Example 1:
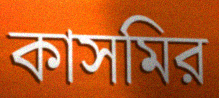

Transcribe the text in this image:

কাসমির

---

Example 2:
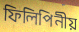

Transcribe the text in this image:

ফিলিপিনীয়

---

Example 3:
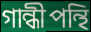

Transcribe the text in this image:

গান্ধীপন্থি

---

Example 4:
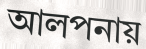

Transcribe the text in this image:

আলপনায়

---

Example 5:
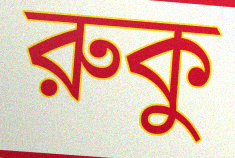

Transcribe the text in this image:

রুকু